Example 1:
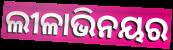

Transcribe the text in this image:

ଲୀଳାଭିନୟର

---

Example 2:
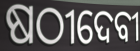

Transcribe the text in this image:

ଷଠୀଦେବୀ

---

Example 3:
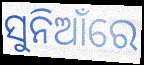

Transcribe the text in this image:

ସୁନିଆଁରେ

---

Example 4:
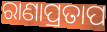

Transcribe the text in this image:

ରାଣାପ୍ରତାପ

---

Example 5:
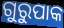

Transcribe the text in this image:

ଗୁରୁପାକ